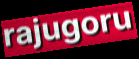
rajugoru